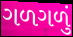
ગળગળું